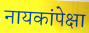
नायकांपेक्षा